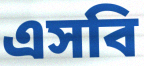
এসবি